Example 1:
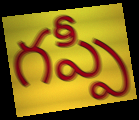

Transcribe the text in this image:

గప్పీ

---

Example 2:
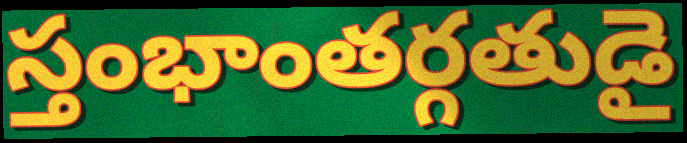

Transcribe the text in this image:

స్తంభాంతర్గతుడై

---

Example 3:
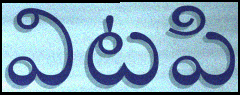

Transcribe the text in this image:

విటపి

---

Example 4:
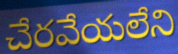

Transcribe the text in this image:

చేరవేయలేని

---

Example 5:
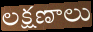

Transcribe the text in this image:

లక్షణాలు